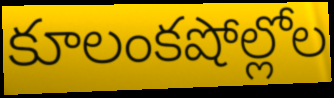
కూలంకషోల్లోల